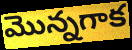
మొన్నగాక